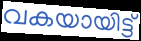
വകയായിട്ട്